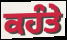
ਕਹੰਤੇ